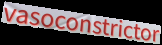
vasoconstrictor